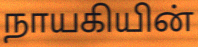
நாயகியின்